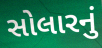
સોલારનું